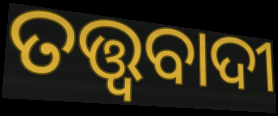
ତତ୍ତ୍ଵବାଦୀ